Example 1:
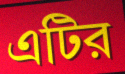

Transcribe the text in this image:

এটির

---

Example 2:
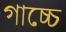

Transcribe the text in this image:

গাচ্চে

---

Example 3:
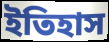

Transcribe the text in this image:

ইতিহাস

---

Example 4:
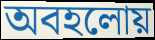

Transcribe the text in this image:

অবহলোয়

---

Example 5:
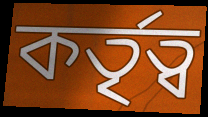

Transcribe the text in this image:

কর্তৃত্ব